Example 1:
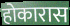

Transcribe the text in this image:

होकारास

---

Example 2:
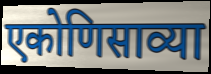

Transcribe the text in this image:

एकोणिसाव्या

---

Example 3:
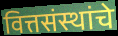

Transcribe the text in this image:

वित्तसंस्थांचे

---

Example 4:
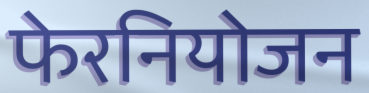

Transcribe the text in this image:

फेरनियोजन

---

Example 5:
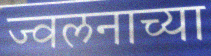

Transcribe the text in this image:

ज्वलनाच्या